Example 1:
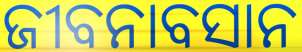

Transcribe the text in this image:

ଜୀବନାବସାନ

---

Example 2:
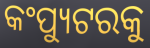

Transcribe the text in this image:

କଂପ୍ୟୁଟରକୁ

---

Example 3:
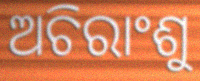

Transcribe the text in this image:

ଅଚିରାଂଶୁ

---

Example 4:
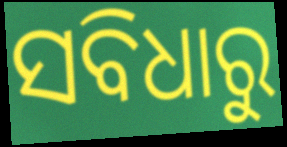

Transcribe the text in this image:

ସବିଧାରୁ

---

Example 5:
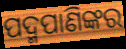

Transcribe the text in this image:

ପଦ୍ମପାଣିଙ୍କର